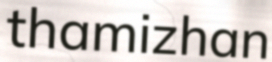
thamizhan